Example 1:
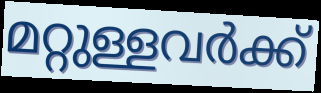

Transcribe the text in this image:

മറ്റുള്ളവർക്ക്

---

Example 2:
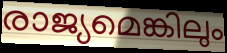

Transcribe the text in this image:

രാജ്യമെങ്കിലും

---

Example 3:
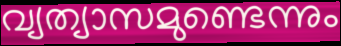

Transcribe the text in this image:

വ്യത്യാസമുണ്ടെന്നും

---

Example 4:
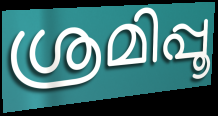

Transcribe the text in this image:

ശ്രമിപ്പൂ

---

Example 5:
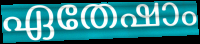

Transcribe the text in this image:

ഏതേഷാം